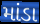
માંડા